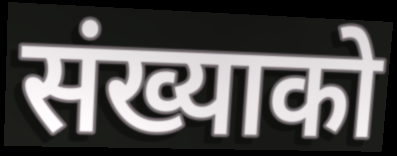
संख्याको